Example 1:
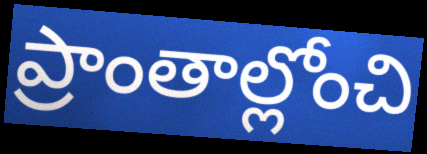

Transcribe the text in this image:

ప్రాంతాల్లోంచి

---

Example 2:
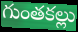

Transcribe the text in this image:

గుంతకల్లు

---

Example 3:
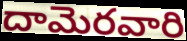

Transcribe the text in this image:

దామెరవారి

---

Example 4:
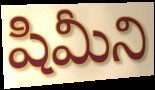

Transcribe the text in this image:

షిమీని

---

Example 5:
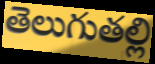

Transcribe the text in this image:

తెలుగుతల్లి